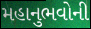
મહાનુભવોની